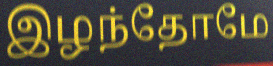
இழந்தோமே